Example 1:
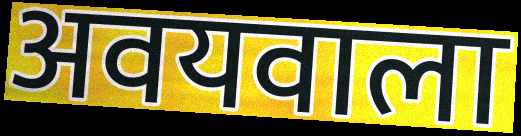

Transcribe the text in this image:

अवयवाला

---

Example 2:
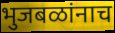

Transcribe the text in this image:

भुजबळांनाच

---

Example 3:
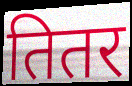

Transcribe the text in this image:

तितर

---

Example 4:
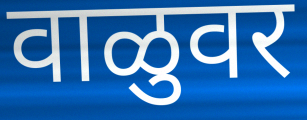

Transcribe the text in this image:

वाळुवर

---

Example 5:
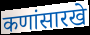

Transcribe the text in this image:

कणांसारखे